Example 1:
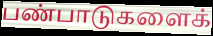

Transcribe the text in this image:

பண்பாடுகளைக்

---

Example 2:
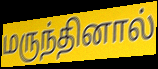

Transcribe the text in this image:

மருந்தினால்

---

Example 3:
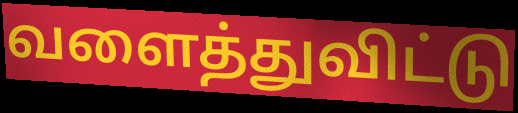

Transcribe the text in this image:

வளைத்துவிட்டு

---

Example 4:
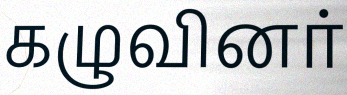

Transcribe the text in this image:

கழுவினர்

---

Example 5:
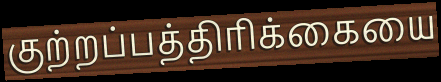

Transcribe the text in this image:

குற்றப்பத்திரிக்கையை